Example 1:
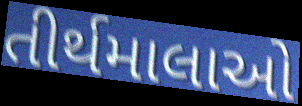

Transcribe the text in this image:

તીર્થમાલાઓ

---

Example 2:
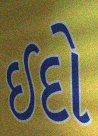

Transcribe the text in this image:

ઈદો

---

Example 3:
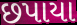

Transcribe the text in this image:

છપાયા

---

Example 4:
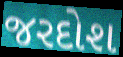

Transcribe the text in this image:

જરદોશ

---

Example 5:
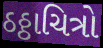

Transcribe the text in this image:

ઠઠ્ઠાચિત્રો